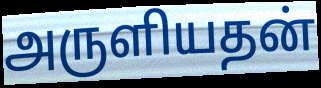
அருளியதன்